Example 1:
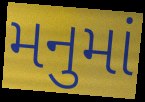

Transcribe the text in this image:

મનુમાં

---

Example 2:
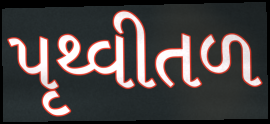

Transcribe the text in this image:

પૃથ્વીતળ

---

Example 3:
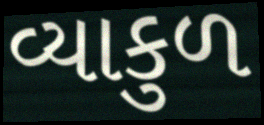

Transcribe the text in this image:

વ્યાકુળ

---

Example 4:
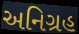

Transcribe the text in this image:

અનિગ્રહ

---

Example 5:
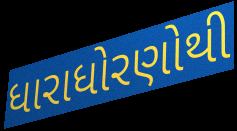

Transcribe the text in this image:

ધારાધોરણોથી